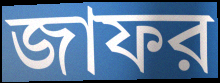
জাফর